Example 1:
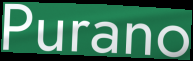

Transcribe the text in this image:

Purano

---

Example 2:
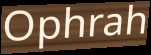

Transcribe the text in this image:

Ophrah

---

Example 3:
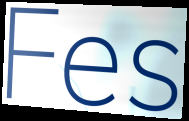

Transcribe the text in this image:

Fes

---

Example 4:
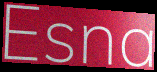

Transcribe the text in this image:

Esna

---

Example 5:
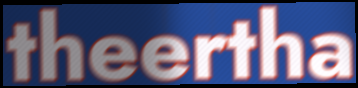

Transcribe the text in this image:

theertha